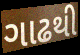
ગાઢથી